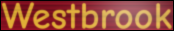
Westbrook